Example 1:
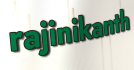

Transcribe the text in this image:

rajinikanth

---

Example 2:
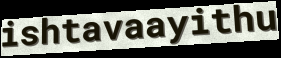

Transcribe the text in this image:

ishtavaayithu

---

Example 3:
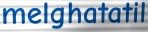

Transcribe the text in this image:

melghatatil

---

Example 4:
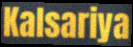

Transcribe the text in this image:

Kalsariya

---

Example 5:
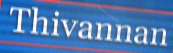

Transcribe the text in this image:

Thivannan